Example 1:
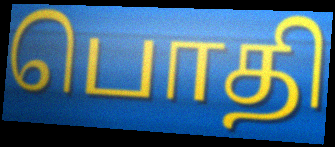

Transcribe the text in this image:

பொதி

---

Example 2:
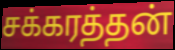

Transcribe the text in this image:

சக்கரத்தன்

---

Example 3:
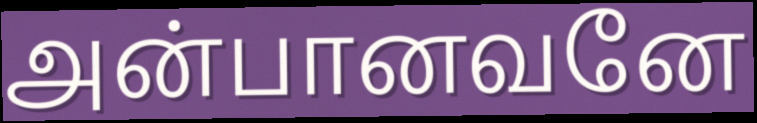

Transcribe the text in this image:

அன்பானவனே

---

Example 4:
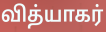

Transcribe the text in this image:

வித்யாகர்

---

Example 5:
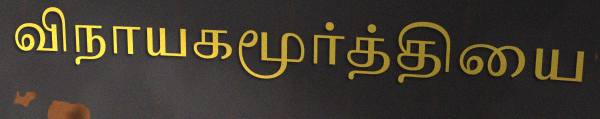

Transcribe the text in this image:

விநாயகமூர்த்தியை